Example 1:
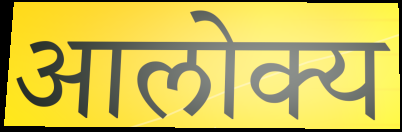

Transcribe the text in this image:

आलोक्य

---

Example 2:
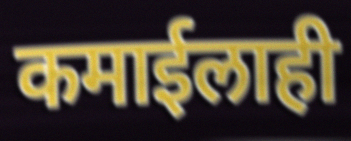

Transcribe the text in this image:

कमाईलाही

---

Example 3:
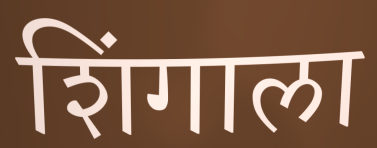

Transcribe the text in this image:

शिंगाला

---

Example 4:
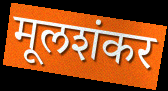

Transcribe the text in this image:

मूलशंकर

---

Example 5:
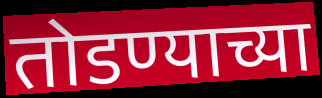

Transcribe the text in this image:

तोडण्याच्या